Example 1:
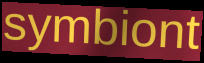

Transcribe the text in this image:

symbiont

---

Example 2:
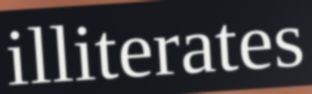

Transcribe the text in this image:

illiterates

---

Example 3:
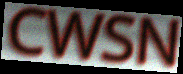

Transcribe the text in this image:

CWSN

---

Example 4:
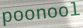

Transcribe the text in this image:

poonool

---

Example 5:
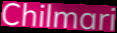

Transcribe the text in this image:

Chilmari